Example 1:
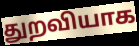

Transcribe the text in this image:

துறவியாக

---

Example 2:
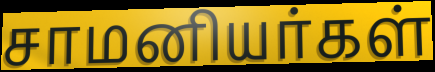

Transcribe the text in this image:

சாமனியர்கள்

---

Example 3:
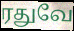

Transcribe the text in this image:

ரதுவே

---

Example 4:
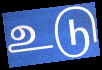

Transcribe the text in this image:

உடு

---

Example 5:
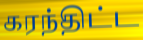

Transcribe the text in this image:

கரந்திட்ட